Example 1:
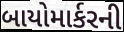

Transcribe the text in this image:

બાયોમાર્કરની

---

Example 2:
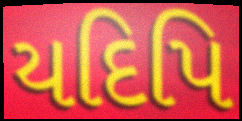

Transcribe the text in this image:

યદિપિ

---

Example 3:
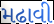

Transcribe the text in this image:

મઢાવી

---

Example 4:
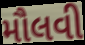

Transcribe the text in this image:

મૌલવી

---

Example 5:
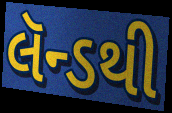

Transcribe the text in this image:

લૅન્ડથી